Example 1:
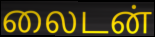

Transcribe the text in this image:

லைடன்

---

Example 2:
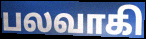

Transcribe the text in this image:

பலவாகி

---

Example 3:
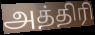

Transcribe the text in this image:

அத்திரி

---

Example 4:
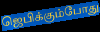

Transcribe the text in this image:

ஜெபிக்கும்போது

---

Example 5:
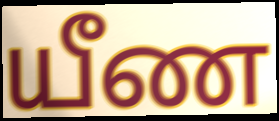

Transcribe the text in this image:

யீண